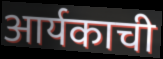
आर्यकाची